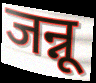
जन्नू